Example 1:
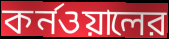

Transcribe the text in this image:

কর্নওয়ালের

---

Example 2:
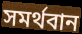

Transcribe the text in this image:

সমর্থবান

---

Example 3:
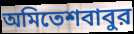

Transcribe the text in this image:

অমিতেশবাবুর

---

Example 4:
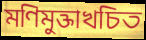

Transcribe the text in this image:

মণিমুক্তাখচিত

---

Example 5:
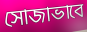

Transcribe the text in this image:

সোজাভাবে